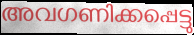
അവഗണിക്കപ്പെട്ടു